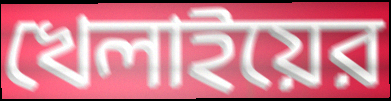
খেলাইয়ের